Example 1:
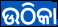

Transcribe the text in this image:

ଉଠିକା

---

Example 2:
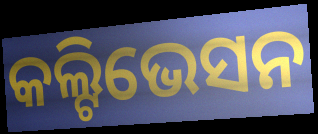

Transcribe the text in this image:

କଲ୍ଟିଭେସନ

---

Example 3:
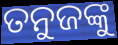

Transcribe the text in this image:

ତନୁଜଙ୍କୁ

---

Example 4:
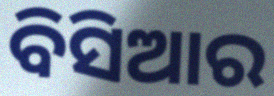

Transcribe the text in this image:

ବିସିଆର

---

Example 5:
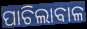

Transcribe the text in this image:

ପାଚିଲାବାଳ